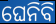
ଘେନିବି